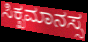
ಸಿಕ್ಖಮಾನಸ್ಸ